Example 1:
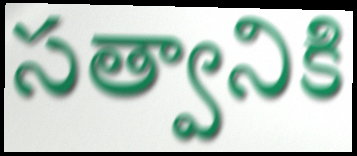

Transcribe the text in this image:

సత్వానికి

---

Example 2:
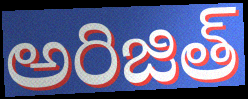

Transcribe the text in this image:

అరిజిత్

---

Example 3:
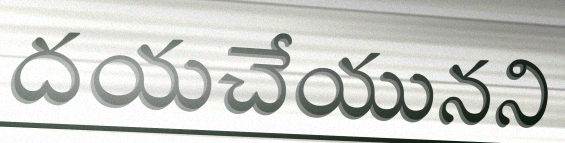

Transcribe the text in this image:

దయచేయునని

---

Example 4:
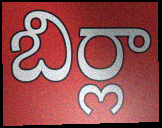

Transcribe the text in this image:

బిర్లా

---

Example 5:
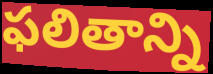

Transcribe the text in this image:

ఫలితాన్ని